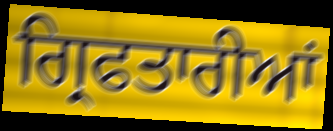
ਗ੍ਰਿਫਤਾਰੀਆਂ